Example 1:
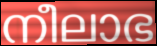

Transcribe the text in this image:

നീലാഭ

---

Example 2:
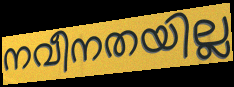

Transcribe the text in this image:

നവീനതയില്ല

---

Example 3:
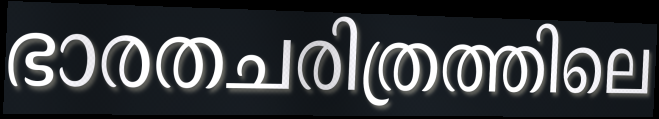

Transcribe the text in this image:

ഭാരതചരിത്രത്തിലെ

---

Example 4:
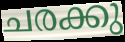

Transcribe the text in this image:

ചരക്കു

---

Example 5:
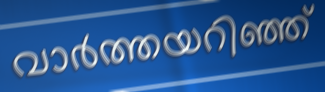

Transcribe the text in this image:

വാർത്തയറിഞ്ഞ്